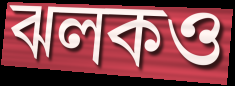
ঝলকও